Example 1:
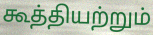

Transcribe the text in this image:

கூத்தியற்றும்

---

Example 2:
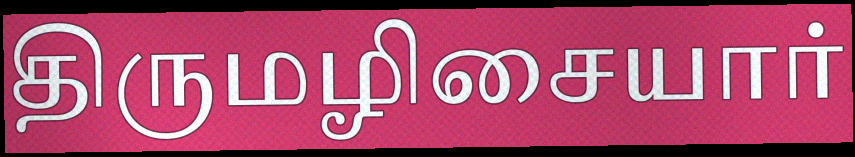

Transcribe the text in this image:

திருமழிசையார்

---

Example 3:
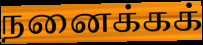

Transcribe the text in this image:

நனைக்கக்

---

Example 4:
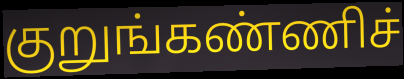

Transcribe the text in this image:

குறுங்கண்ணிச்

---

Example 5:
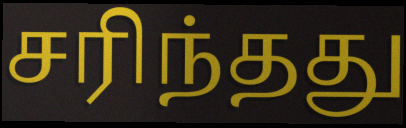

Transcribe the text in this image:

சரிந்தது